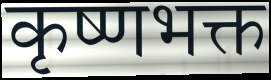
कृष्णभक्त